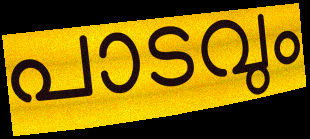
പാടവും